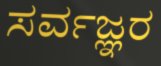
ಸರ್ವಜ್ಞರ